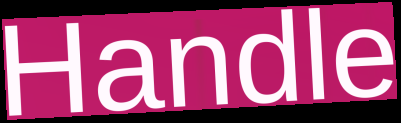
Handle